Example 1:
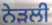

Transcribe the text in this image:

ਨੇੜਲੀ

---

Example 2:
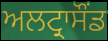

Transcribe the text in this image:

ਅਲਟ੍ਰਾਸੌਂਡ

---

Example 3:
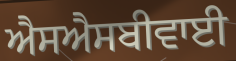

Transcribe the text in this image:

ਐਸਐਸਬੀਵਾਈ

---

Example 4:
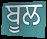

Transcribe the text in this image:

ਬੂਲ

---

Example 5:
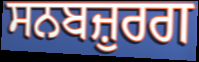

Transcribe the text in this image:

ਸਨਬਜ਼ੁਰਗ